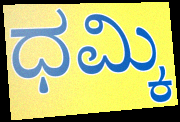
ಧಮ್ಕಿ